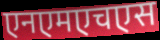
एनएमएचएस